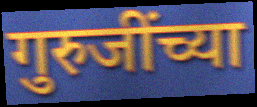
गुरुजींच्या